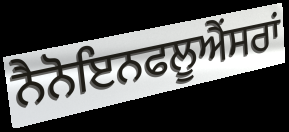
ਨੈਨੋਇਨਫਲੂਐਂਸਰਾਂ